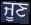
ਜੂਣ